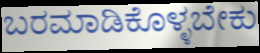
ಬರಮಾಡಿಕೊಳ್ಳಬೇಕು